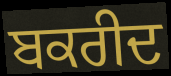
ਬਕਰੀਦ